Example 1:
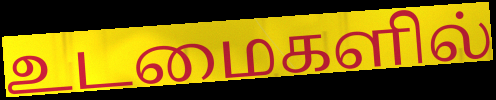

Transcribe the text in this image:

உடமைகளில்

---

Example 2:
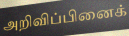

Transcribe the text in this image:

அறிவிப்பினைக்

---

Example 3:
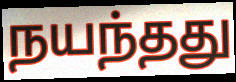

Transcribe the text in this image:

நயந்தது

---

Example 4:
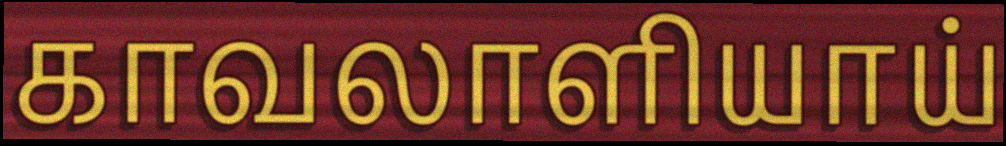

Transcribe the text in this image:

காவலாளியாய்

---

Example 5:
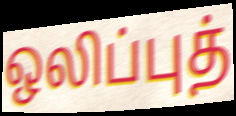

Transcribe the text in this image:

ஒலிப்புத்